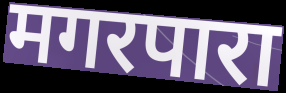
मगरपारा